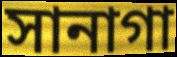
সানাগা